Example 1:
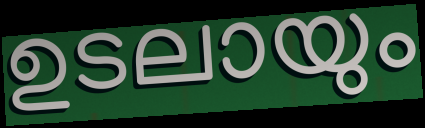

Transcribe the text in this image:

ഉടലായും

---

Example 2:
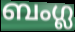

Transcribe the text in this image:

ബംഗ്ല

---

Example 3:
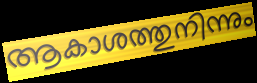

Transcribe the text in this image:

ആകാശത്തുനിന്നും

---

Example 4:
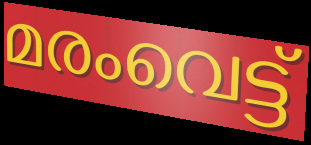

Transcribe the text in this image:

മരംവെട്ട്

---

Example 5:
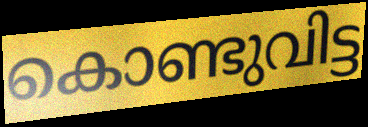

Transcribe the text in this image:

കൊണ്ടുവിട്ട